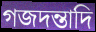
গজদন্তাদি